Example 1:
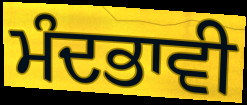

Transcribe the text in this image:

ਮੰਦਭਾਵੀ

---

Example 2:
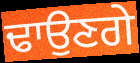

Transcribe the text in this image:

ਢਾਉਣਗੇ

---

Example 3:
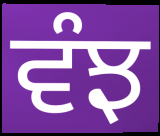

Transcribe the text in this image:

ਵੰਝ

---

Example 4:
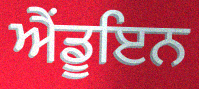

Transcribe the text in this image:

ਐਂਡੂਇਨ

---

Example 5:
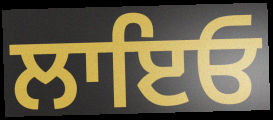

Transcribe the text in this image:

ਲਾਇਓ